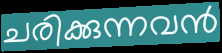
ചരിക്കുന്നവൻ